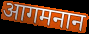
आगमनान